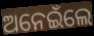
ଅନେଇଁଲେ